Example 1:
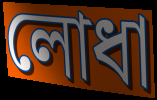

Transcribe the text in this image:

লোধা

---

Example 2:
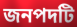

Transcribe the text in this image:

জনপদটি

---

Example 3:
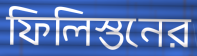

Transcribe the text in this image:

ফিলিস্তনের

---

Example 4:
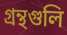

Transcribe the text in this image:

গ্রন্থগুলি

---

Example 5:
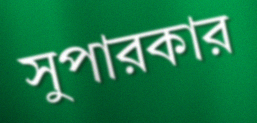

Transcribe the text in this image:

সুপারকার